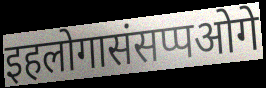
इहलोगासंसप्पओगे